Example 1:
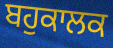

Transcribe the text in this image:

ਬਹੁਕਾਲਕ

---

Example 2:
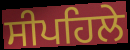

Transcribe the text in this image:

ਸੀਪਹਿਲੇ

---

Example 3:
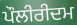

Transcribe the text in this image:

ਪੌਲੀਰੀਦਮ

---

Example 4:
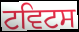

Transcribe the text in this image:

ਟਵਿਟਸ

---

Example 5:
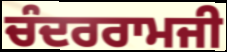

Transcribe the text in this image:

ਚੰਦਰਰਾਮਜੀ